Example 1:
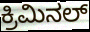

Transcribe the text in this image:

ಕ್ರಿಮಿನಲ್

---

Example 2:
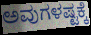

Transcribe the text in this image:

ಅವುಗಳಷ್ಟಕ್ಕೆ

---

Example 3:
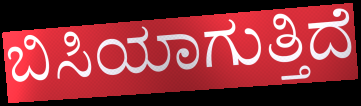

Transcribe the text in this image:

ಬಿಸಿಯಾಗುತ್ತಿದೆ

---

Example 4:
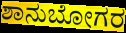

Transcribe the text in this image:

ಶಾನುಬೋಗರ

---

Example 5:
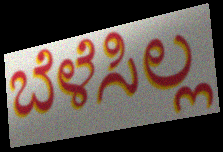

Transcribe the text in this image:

ಬೆಳೆಸಿಲ್ಲ